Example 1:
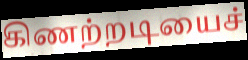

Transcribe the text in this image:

கிணற்றடியைச்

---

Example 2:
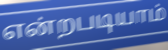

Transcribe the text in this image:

என்றபடியாம்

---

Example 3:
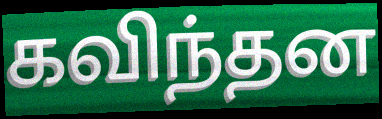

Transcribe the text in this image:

கவிந்தன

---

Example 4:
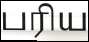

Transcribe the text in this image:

பரிய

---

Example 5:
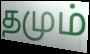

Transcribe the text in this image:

தமும்